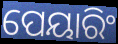
ପେୟାରିଂ